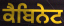
ਕੈਬਿਨੇਟ